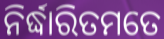
ନିର୍ଦ୍ଧାରିତମତେ